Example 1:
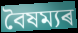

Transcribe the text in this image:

বৈষম্যৰ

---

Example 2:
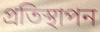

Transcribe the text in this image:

প্ৰতিস্থাপন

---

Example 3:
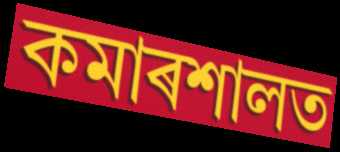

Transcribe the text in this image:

কমাৰশালত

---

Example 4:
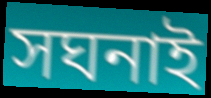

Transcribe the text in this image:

সঘনাই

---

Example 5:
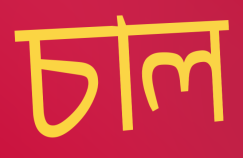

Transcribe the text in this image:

চাল